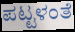
ಪಟ್ಟಳಂತೆ